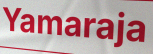
Yamaraja